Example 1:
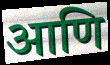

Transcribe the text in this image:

आणि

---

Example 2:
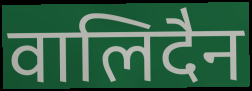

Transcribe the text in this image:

वालिदैन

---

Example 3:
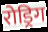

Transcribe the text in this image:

रोड्रिग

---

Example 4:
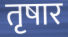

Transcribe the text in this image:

तृषार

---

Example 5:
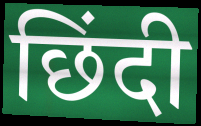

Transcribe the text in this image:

छिंदी